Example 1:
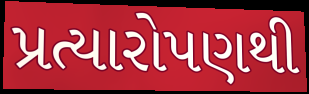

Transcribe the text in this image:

પ્રત્યારોપણથી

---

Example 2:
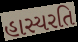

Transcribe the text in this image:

હાસ્યરતિ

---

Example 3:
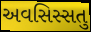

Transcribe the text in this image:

અવસિસ્સતુ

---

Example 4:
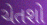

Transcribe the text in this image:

ચેતશો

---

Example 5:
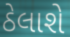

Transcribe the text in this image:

ઠેલાશે